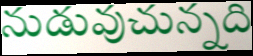
నుడువుచున్నది